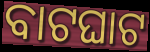
ବାଟଘାଟ